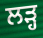
ਲੜ੍ਹ